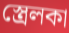
স্ত্রেলকা